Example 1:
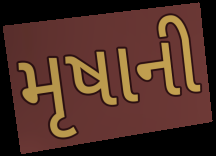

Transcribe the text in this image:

મૃષાની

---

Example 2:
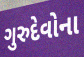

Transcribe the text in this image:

ગુરુદેવોના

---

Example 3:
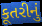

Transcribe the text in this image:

કૂતરીનું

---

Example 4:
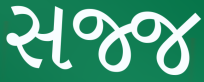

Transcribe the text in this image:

સજ્જ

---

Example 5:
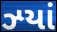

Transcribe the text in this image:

ઝ્યાં